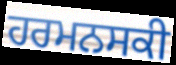
ਹਰਮਨਸਕੀ